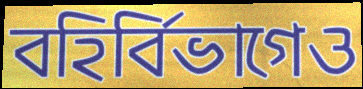
বহির্বিভাগেও